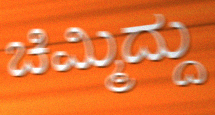
ಚಿಮ್ಮಿದ್ದು